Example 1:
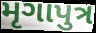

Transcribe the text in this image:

મૃગાપુત્ર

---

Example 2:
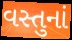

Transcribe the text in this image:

વસ્તુનાં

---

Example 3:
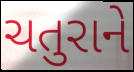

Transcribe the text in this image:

ચતુરાને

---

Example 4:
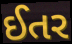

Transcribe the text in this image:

ઈતર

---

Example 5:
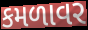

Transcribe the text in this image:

કમળાવર